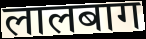
लालबाग